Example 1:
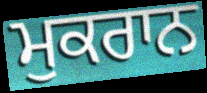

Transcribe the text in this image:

ਮੁਕਰਾਨ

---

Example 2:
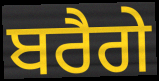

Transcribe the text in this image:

ਬਰੈਗੇ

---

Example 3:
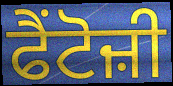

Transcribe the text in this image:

ਫੈਂਟੋਜ਼ੀ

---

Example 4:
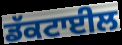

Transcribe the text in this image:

ਡੱਕਟਾਈਲ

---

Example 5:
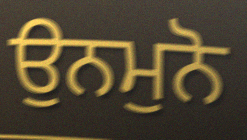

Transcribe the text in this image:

ਉਨਮੁਨੋ